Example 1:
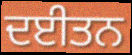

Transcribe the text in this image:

ਦਈਤਨ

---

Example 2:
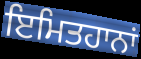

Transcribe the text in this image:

ਇਮਿਤਹਾਨਾਂ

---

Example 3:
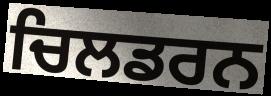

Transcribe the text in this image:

ਚਿਲਡਰਨ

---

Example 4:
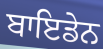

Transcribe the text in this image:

ਬਾਇਡੇਨ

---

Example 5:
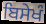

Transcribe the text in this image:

ਬਿਸੇਖੰ